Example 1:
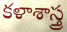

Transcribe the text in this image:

కళాశాస్త్ర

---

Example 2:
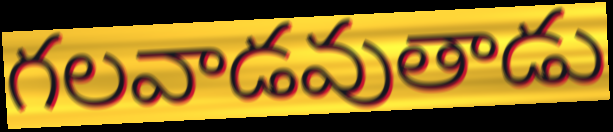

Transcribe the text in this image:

గలవాడవుతాడు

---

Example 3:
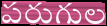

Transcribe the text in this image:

పరుగుల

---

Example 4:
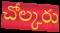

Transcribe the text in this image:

చోల్కరు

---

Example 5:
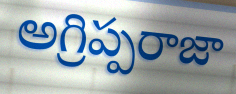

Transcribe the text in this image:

అగ్రిప్పరాజా